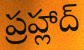
ప్రహ్లాద్